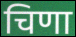
चिणा